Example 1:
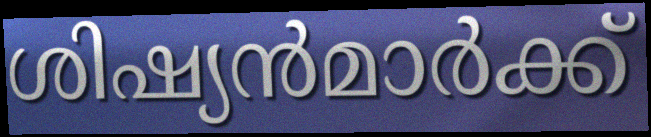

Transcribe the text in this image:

ശിഷ്യൻമാർക്ക്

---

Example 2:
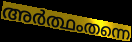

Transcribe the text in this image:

അർത്ഥംതന്നെ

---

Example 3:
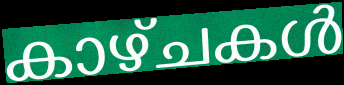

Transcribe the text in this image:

കാഴ്‌ചകൾ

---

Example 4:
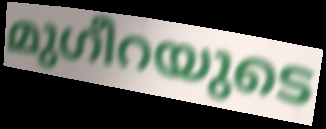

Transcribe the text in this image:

മുഗീറയുടെ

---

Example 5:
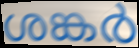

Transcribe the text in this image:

ശങ്കർ